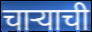
चाऱ्याची